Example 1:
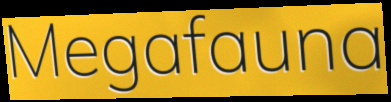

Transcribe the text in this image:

Megafauna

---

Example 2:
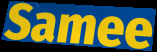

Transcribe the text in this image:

Samee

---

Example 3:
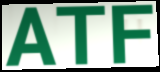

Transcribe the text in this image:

ATF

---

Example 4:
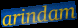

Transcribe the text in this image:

arindam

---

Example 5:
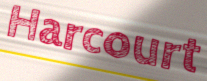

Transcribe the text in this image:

Harcourt